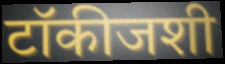
टॉकीजशी